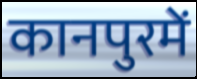
कानपुरमें